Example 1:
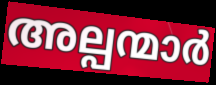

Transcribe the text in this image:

അല്പന്മാർ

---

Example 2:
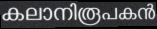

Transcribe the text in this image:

കലാനിരൂപകൻ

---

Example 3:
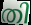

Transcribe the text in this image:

തി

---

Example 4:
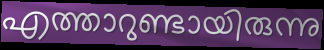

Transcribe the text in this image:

എത്താറുണ്ടായിരുന്നു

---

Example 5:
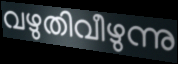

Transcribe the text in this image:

വഴുതിവീഴുന്നു